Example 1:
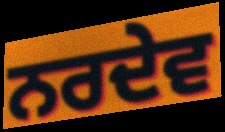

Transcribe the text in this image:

ਨਰਦੇਵ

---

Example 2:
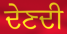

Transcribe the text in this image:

ਦੇਣਦੀ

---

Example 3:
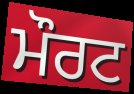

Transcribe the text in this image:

ਮੌਰਟ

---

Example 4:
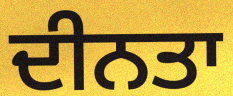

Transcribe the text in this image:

ਦੀਨਤਾ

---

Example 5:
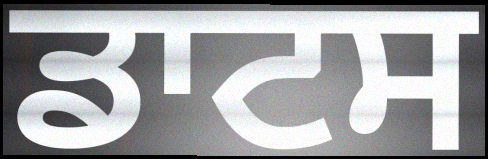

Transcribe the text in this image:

ਡਾਟਸ